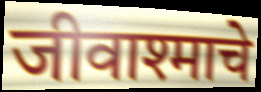
जीवाश्माचे